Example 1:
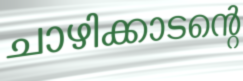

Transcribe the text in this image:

ചാഴിക്കാടന്റെ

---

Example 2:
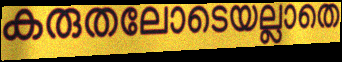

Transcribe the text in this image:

കരുതലോടെയല്ലാതെ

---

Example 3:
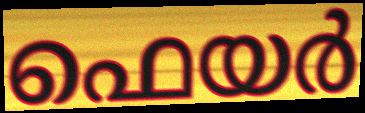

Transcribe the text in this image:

ഫെയർ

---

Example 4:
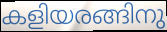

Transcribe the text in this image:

കളിയരങ്ങിനു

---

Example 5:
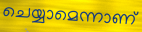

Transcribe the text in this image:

ചെയ്യാമെന്നാണ്